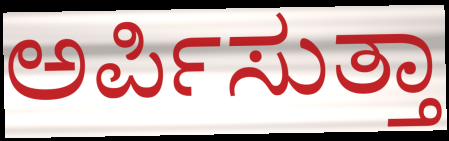
ಅರ್ಪಿಸುತ್ತಾ